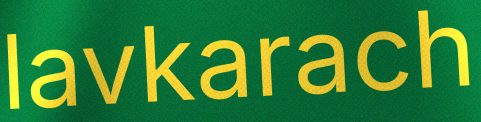
lavkarach